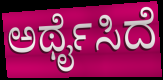
ಅರ್ಥೈಸಿದೆ